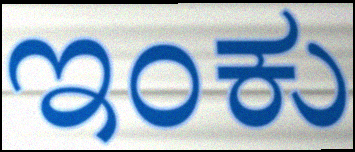
ಇಂಕು